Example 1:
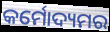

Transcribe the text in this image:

କର୍ମୋଦ୍ୟମର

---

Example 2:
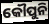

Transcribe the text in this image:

କୌପୁନି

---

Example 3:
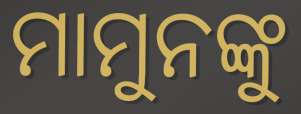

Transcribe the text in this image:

ମାମୁନଙ୍କୁ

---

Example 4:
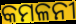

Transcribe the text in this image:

କମଳନୀ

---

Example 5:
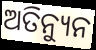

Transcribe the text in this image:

ଅତିନ୍ୟୁନ